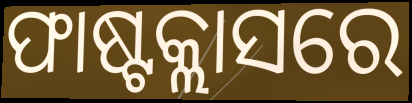
ଫାଷ୍ଟକ୍ଲାସରେ